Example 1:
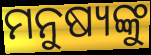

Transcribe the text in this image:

ମନୁଷ୍ୟଙ୍କୁ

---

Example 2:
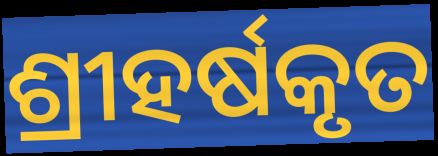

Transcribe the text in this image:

ଶ୍ରୀହର୍ଷକୃତ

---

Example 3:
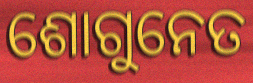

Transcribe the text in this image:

ଶୋଗୁନେତ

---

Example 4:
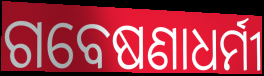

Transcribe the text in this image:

ଗବେଷଣାଧର୍ମୀ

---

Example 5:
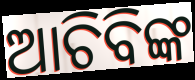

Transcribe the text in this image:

ଆଚିବିଙ୍କ